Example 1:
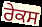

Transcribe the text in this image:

ਰੇਕਸ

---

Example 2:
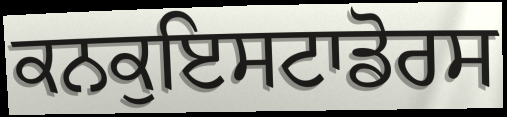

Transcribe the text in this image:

ਕਨਕੁਇਸਟਾਡੋਰਸ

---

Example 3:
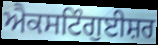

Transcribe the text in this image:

ਐਕਸਟਿੰਗੁਈਸ਼ਰ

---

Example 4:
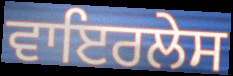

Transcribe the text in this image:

ਵਾਇਰਲੇਸ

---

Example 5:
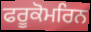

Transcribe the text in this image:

ਫਰੂਕੋਮਰਿਨ